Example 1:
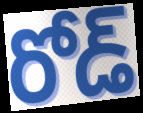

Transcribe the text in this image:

రోడ్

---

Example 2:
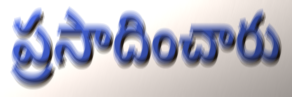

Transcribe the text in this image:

ప్రసాదించారు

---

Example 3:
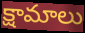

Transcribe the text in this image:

క్షామాలు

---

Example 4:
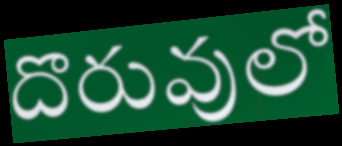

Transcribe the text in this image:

దొరువులో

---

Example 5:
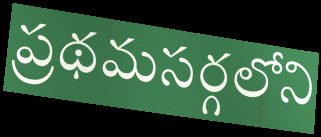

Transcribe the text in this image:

ప్రథమసర్గలోని